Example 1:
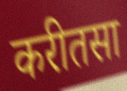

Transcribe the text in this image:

करीतसा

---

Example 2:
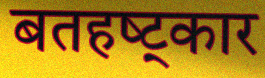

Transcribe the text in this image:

बतहष्ट्कार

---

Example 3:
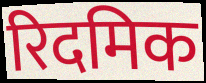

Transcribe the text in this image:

रिदमिक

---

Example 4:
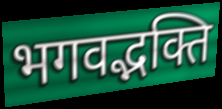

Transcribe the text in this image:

भगवद्भक्ति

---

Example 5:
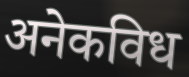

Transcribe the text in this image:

अनेकविध